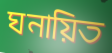
ঘনায়িত